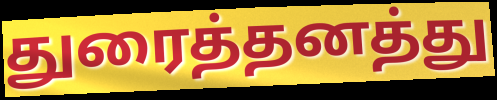
துரைத்தனத்து